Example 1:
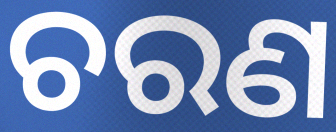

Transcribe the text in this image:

ଚରଣ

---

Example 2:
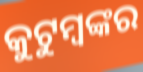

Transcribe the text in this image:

କୁଟୁମ୍ବଙ୍କର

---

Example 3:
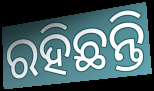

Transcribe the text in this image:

ରହିଛନ୍ତି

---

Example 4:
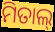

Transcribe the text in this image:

ମିତାଲ୍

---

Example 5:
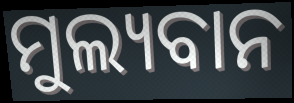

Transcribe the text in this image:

ମୁଲ୍ୟବାନ